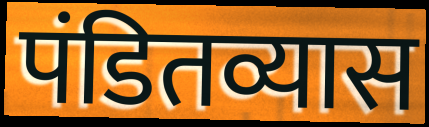
पंडितव्यास